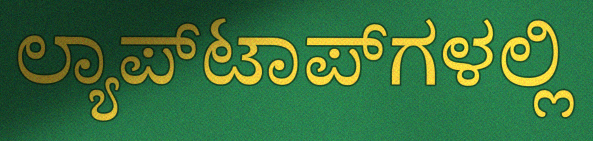
ಲ್ಯಾಪ್‌ಟಾಪ್‌ಗಳಲ್ಲಿ